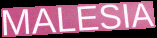
MALESIA